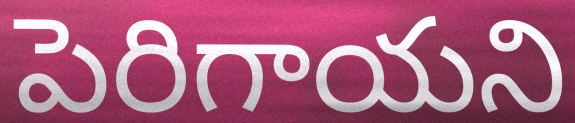
పెరిగాయని